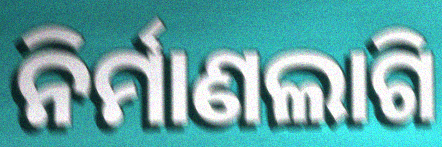
ନିର୍ମାଣଲାଗି